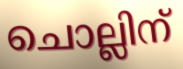
ചൊല്ലിന്